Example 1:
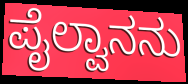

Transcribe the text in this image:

ಪೈಲ್ವಾನನು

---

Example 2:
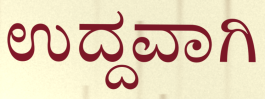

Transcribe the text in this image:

ಉದ್ದವಾಗಿ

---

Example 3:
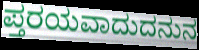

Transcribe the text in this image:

ಪ್ತರಯವಾದುದನುನ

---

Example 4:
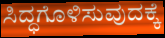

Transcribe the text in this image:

ಸಿದ್ಧಗೊಳಿಸುವುದಕ್ಕೆ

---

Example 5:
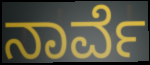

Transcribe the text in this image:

ನಾರ್ವೆ